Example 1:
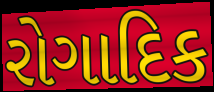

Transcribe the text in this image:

રોગાદિક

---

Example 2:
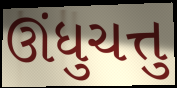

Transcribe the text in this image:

ઊંધુચત્તુ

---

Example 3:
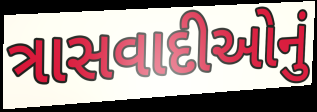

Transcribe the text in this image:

ત્રાસવાદીઓનું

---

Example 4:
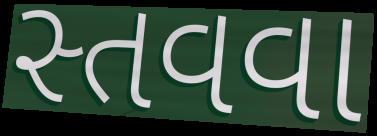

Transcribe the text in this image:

સ્તવવા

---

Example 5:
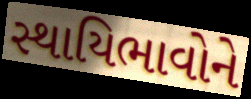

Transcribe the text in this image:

સ્થાયિભાવોને